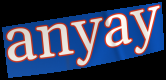
anyay